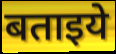
बताइये